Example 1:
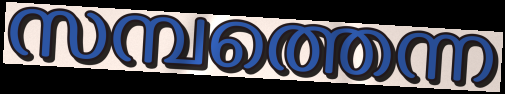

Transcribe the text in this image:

സമ്പത്തെന്ന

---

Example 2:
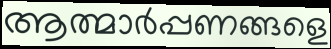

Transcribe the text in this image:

ആത്മാർപ്പണങ്ങളെ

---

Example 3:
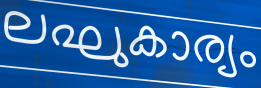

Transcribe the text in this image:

ലഘുകാര്യം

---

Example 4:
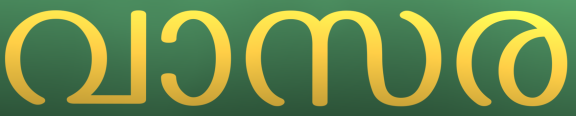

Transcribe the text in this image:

വാസര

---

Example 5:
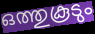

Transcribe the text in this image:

ഒത്തുകൂടും